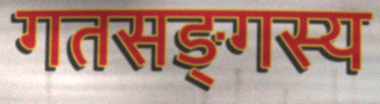
गतसङ्गस्य